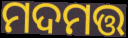
ମଦମତ୍ତ